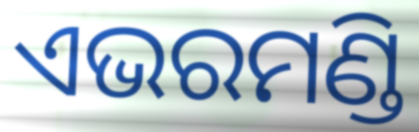
ଏଭରମଣ୍ଡି